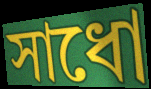
সাধো